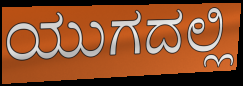
ಯುಗದಲ್ಲಿ